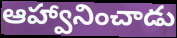
ఆహ్వానించాడు